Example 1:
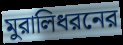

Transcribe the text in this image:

মুরালিধরনের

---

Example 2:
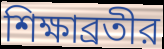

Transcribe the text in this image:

শিক্ষাব্রতীর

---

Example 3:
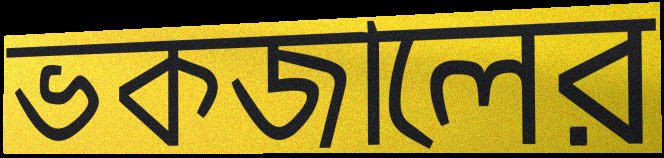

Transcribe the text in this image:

ভকজালের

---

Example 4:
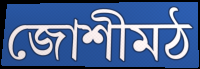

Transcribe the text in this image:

জোশীমঠ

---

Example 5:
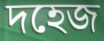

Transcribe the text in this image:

দহেজ